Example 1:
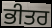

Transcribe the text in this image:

ਭੀਤਰ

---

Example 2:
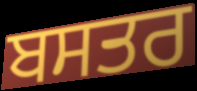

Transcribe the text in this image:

ਬਸਤਰ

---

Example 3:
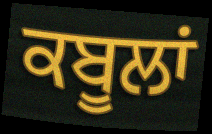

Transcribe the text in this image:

ਕਬੂਲਾਂ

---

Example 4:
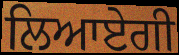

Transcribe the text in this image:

ਲਿਆਏਗੀ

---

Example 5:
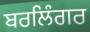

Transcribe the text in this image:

ਬਰਲਿੰਗਰ